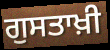
ਗੁਸਤਾਖ਼ੀ